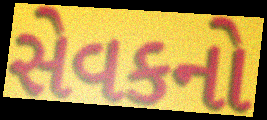
સેવકનો